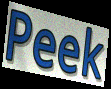
Peek